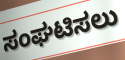
ಸಂಘಟಿಸಲು